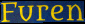
Furen